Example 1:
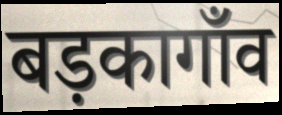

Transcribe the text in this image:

बड़कागाँव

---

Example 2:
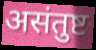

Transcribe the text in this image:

असंतुष्ट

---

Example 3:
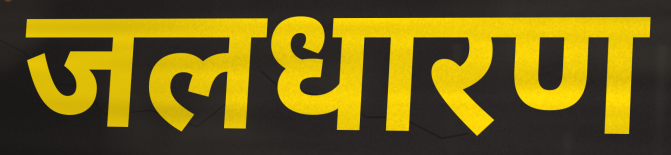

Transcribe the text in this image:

जलधारण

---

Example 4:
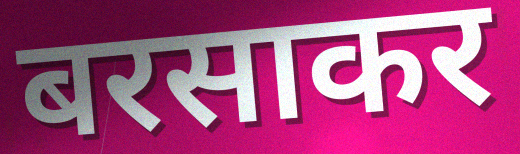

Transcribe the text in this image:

बरसाकर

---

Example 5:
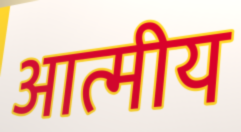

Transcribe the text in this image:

आत्मीय